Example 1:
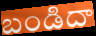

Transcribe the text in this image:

బండిదా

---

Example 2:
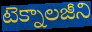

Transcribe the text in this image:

టెక్నాలజీని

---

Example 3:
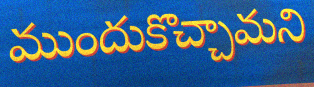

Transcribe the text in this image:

ముందుకొచ్చామని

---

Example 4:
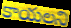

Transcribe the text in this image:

కాయలని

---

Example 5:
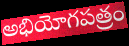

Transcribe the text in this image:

అభియోగపత్రం